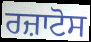
ਰਜ਼ਾਟੋਸ